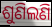
ଶୁଣିଲଣି